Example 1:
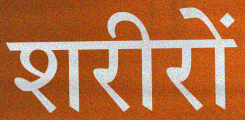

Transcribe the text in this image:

शरीरों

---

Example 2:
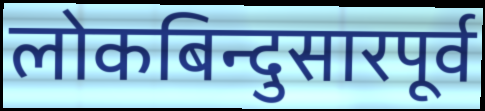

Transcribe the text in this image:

लोकबिन्दुसारपूर्व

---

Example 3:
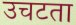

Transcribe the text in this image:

उचटता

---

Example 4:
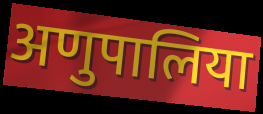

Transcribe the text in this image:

अणुपालिया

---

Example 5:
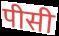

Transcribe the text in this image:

पीसी